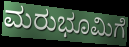
ಮರುಭೂಮಿಗೆ